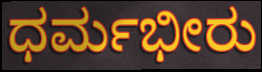
ಧರ್ಮಭೀರು